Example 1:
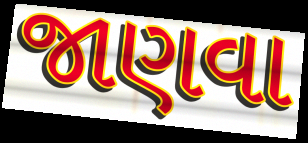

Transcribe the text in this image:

જાણવા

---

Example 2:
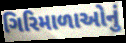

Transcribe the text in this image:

ગિરિમાળાઓનું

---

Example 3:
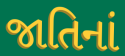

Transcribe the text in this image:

જાતિનાં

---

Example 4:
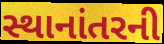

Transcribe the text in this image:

સ્થાનાંતરની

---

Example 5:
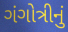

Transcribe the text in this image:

ગંગોત્રીનું